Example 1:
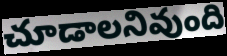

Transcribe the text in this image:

చూడాలనివుంది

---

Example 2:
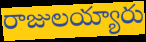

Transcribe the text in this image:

రాజులయ్యారు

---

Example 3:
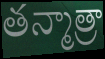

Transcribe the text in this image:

తన్మాత్రా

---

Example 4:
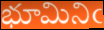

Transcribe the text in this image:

భూమినిఁ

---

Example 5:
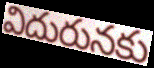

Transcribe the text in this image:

విదురునకు